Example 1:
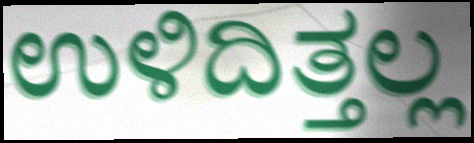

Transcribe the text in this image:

ಉಳಿದಿತ್ತಲ್ಲ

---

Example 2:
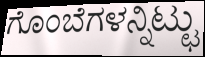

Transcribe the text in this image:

ಗೊಂಬೆಗಳನ್ನಿಟ್ಟು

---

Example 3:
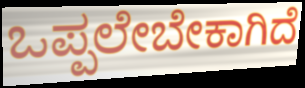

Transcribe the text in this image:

ಒಪ್ಪಲೇಬೇಕಾಗಿದೆ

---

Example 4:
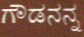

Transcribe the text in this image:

ಗೌಡನನ್ನ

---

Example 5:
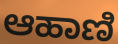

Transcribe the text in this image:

ಆಹಾಣಿ